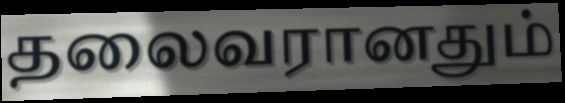
தலைவரானதும்